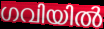
ഗവിയിൽ